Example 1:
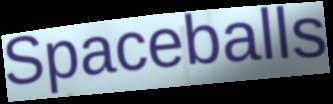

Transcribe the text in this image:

Spaceballs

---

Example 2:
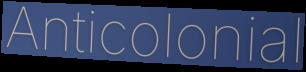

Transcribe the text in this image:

Anticolonial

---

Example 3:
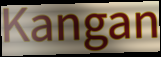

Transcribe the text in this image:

Kangan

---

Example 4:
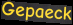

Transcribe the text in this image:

Gepaeck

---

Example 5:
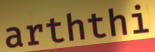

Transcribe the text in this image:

arththi